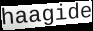
haagide